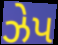
ઝેપ